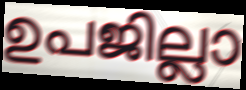
ഉപജില്ലാ